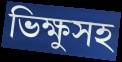
ভিক্ষুসহ